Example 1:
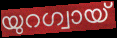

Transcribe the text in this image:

യുറഗ്വായ്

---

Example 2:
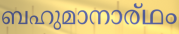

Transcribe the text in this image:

ബഹുമാനാര്ഥം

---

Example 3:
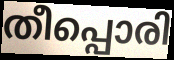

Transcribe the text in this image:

തീപ്പൊരി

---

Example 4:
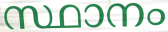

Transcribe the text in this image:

സ്ഥാനം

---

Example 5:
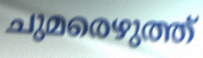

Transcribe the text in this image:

ചുമരെഴുത്ത്